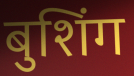
बुशिंग